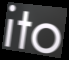
ito